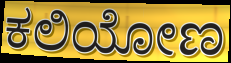
ಕಲಿಯೋಣ